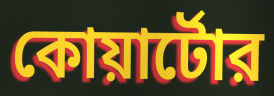
কোয়ার্টোর